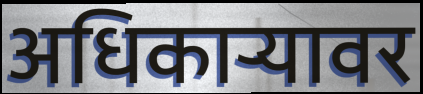
अधिकार्‍यावर